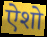
ऐशो